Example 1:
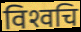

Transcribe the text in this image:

विश्वचि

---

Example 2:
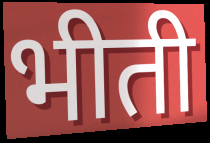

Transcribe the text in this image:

भीती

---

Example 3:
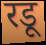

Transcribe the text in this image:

रडू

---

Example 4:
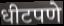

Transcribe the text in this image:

धीटपणे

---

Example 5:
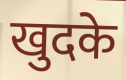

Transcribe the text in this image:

खुदके